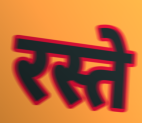
रस्ते